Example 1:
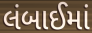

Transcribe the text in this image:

લંબાઈમાં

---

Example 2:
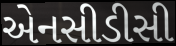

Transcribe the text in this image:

એનસીડીસી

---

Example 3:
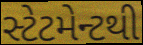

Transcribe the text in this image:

સ્ટેટમેન્ટથી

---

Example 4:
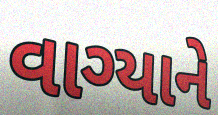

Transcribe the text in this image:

વાગ્યાને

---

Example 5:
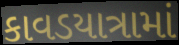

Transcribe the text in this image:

કાવડયાત્રામાં